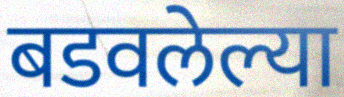
बडवलेल्या